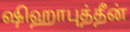
ஷிஹாபுத்தீன்